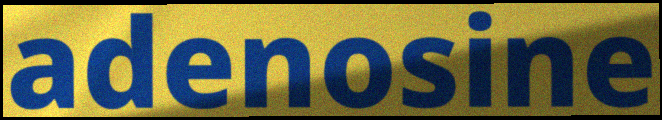
adenosine